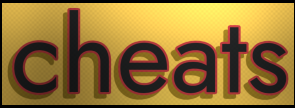
cheats